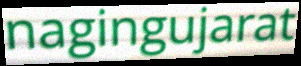
nagingujarat